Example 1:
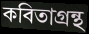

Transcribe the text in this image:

কবিতাগ্রন্থ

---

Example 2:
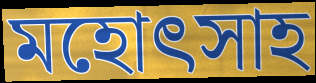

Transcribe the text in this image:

মহোৎসাহ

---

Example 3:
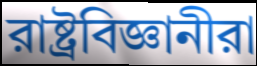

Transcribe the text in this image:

রাষ্ট্রবিজ্ঞানীরা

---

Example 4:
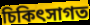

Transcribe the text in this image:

চিকিৎসাগত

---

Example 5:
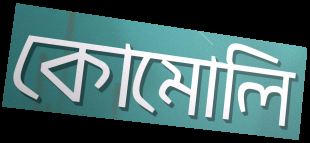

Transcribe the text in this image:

কোমোলি